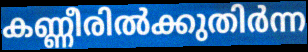
കണ്ണീരിൽക്കുതിർന്ന